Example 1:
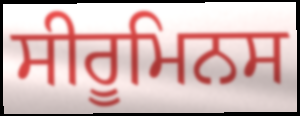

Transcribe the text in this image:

ਸੀਰੂਮਿਨਸ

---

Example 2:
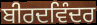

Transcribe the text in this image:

ਬੀਰਦਵਿੰਦਰ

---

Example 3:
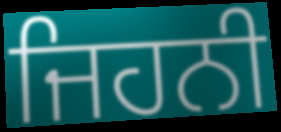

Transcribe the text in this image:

ਜਿਹਨੀ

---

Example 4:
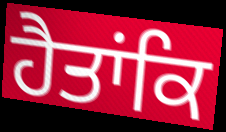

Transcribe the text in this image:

ਹੈਤਾਂਕਿ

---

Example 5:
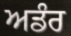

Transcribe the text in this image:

ਅਡੰਰ